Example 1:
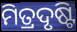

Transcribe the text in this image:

ମିତ୍ରଦୃଷ୍ଟି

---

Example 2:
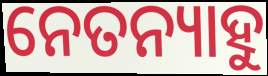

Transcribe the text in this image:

ନେତନ୍ୟାହୁ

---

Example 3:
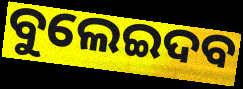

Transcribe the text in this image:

ବୁଲେଇଦବ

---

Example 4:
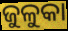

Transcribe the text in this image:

ଜୁଳୁକା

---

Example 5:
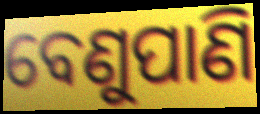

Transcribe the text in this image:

ବେଣୁପାଣି